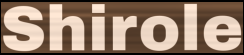
Shirole